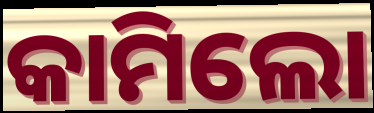
କାମିଲୋ